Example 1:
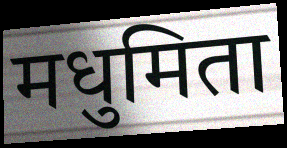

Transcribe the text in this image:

मधुमिता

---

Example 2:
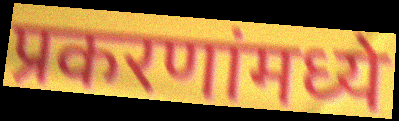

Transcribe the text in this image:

प्रकरणांमध्ये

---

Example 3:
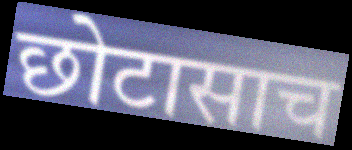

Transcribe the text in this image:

छोटासाच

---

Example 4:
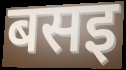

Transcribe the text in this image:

बसइ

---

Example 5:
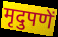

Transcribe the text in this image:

मृदुपणें